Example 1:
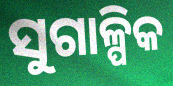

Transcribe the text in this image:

ସୁଗାଳ୍ପିକ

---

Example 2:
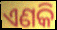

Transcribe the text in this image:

ଏଣକି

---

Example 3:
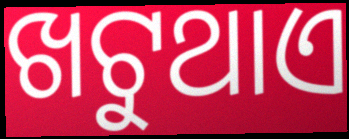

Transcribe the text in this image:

ଖଟୁଥାଏ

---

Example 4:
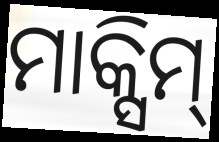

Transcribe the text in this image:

ମାକ୍ସିମ୍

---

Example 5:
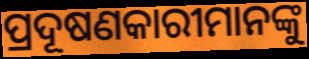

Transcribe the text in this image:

ପ୍ରଦୂଷଣକାରୀମାନଙ୍କୁ